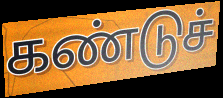
கண்டுச்